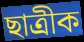
ছাত্ৰীক